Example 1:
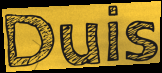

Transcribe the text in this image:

Duis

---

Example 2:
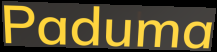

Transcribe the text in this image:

Paduma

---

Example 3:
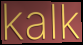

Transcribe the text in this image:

kalk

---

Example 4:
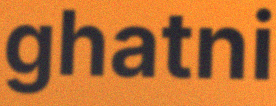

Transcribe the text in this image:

ghatni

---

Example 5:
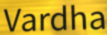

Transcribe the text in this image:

Vardha